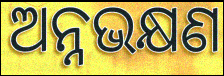
ଅନ୍ନଭକ୍ଷଣ